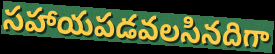
సహాయపడవలసినదిగా